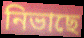
নিভাছে